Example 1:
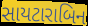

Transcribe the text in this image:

સાયટારાબિન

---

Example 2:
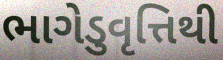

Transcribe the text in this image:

ભાગેડુવૃત્તિથી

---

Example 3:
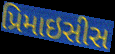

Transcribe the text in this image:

પ્રિમાઇસીસ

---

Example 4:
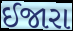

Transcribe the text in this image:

ઈજારા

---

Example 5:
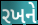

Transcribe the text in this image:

રખને